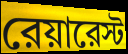
রেয়ারেস্ট